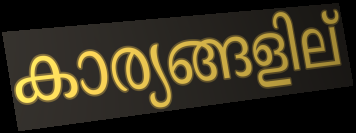
കാര്യങ്ങളില്